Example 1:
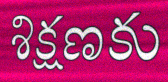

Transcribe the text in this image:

శిక్షణకు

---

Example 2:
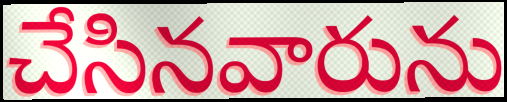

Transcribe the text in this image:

చేసినవారును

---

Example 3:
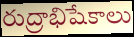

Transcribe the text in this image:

రుద్రాభిషేకాలు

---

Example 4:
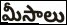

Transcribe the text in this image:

మీసాలు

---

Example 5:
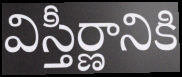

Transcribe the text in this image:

విస్తీర్ణానికి